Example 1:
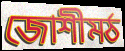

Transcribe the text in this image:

জোশীমঠ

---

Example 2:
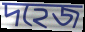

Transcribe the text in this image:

দহেজ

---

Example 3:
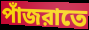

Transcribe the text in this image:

পাঁজরাতে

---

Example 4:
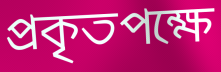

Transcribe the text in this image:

প্রকৃতপক্ষে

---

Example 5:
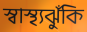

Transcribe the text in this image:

স্বাস্থ্যঝুঁকি